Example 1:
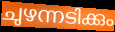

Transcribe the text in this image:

ചുഴന്നടിക്കും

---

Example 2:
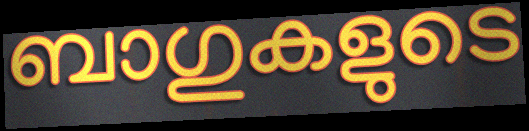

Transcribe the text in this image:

ബാഗുകളുടെ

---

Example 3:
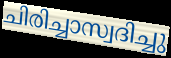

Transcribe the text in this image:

ചിരിച്ചാസ്വദിച്ചു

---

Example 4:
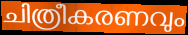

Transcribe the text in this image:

ചിത്രീകരണവും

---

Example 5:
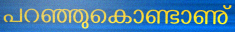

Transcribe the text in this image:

പറഞ്ഞുകൊണ്ടാണു്